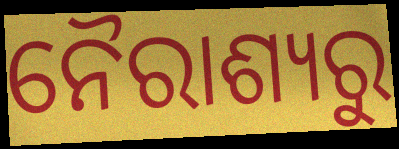
ନୈରାଶ୍ୟରୁ